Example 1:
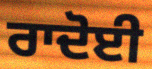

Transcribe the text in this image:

ਰਾਦੋਈ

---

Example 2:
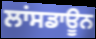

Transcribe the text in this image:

ਲਾਂਸਡਾਊਨ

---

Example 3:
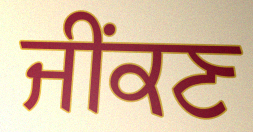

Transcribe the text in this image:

ਜੀਂਕਣ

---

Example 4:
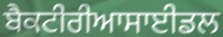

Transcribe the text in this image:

ਬੈਕਟੀਰੀਆਸਾਈਡਲ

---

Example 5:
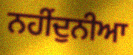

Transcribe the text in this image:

ਨਹੀਂਦੁਨੀਆ